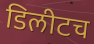
डिलीटच